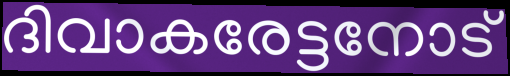
ദിവാകരേട്ടനോട്